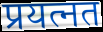
प्रयत्नत